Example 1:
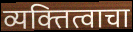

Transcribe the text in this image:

व्यक्तित्वाचा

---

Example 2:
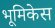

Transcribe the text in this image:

भूमिकेस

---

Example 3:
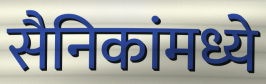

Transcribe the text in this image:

सैनिकांमध्ये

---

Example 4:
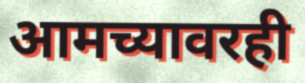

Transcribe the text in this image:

आमच्यावरही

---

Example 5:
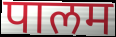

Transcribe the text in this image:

पालम